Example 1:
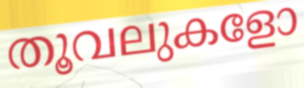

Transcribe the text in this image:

തൂവലുകളോ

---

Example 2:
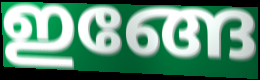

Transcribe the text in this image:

ഇങ്ങേ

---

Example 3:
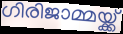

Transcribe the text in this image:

ഗിരിജാമ്മയ്ക്ക്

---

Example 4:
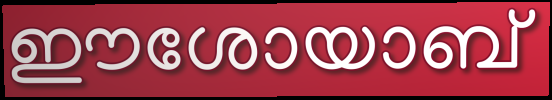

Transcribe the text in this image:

ഈശോയാബ്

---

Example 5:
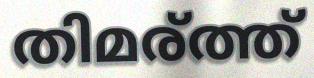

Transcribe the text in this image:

തിമര്ത്ത്